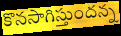
కొనసాగిస్తుందన్న